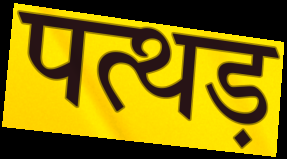
पत्थड़